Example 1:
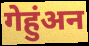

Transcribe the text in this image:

गेहुंअन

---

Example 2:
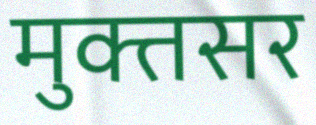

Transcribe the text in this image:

मुक्तसर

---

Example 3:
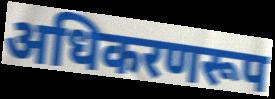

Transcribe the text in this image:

अधिकरणरूप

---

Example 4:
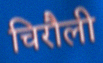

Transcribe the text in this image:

चिरौली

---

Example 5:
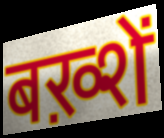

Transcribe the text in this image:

बख़्शें